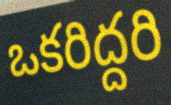
ఒకరిద్దరి